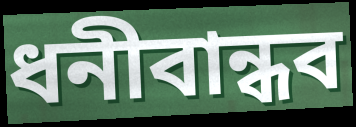
ধনীবান্ধব